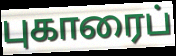
புகாரைப்